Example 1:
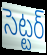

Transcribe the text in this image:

సెట్టర్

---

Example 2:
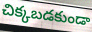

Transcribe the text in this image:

చిక్కబడకుండా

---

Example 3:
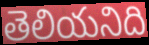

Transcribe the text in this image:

తెలియనిది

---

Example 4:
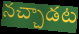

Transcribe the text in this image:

నచ్చాడట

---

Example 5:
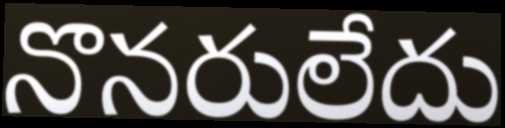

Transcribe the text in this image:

నొనరులేదు